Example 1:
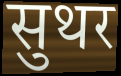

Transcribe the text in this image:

सुथर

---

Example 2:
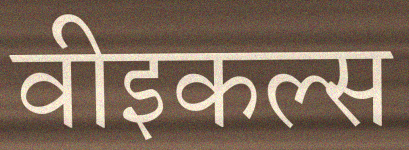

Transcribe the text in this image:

वीइकल्स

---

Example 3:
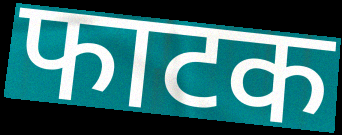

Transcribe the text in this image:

फाटक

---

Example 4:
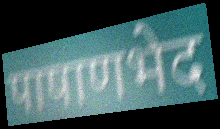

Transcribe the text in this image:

पाषाणभेद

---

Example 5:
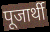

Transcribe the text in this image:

पूजार्थी